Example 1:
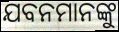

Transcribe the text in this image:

ଯବନମାନଙ୍କୁ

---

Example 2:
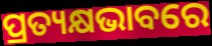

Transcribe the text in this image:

ପ୍ରତ୍ୟକ୍ଷଭାବରେ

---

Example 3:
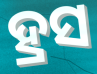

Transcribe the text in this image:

ହ୍ରସ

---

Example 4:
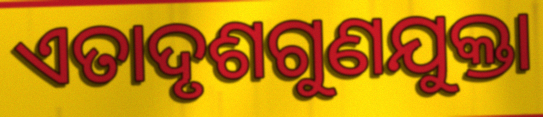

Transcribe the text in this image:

ଏତାଦୃଶଗୁଣଯୁକ୍ତା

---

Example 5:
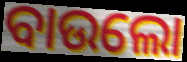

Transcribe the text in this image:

ବାଉଲୋ